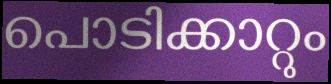
പൊടിക്കാറ്റും